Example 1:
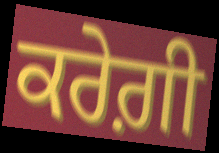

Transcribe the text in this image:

ਕਰੇਗ਼ੀ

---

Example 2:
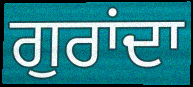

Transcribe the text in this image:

ਗੁਰਾਂਦਾ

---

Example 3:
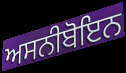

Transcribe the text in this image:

ਅਸਨੀਬੋਇਨ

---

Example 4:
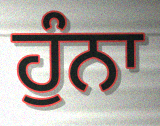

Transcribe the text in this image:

ਹੁੰਨਾ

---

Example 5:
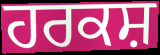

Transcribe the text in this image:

ਹਰਕਸ਼